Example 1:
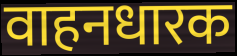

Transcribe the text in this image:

वाहनधारक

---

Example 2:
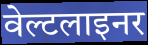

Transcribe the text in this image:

वेल्टलाइनर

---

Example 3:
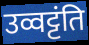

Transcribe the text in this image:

उव्वट्टंति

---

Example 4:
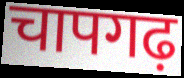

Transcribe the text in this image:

चापगढ़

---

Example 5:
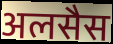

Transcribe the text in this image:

अलसैस